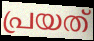
പ്രയത്